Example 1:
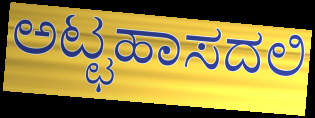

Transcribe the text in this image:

ಅಟ್ಟಹಾಸದಲಿ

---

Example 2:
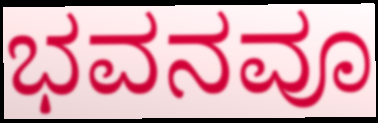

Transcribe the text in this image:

ಭವನವೂ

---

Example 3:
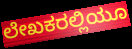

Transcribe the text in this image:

ಲೇಖಕರಲ್ಲಿಯೂ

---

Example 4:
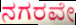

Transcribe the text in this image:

ನಗರವೇ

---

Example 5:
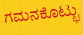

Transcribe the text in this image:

ಗಮನಕೊಟ್ಟು